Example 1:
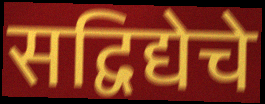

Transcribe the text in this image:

सद्विद्येचे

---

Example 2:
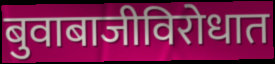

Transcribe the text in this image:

बुवाबाजीविरोधात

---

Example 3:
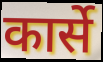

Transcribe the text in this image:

कार्से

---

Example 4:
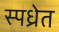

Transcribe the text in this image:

स्पध्रेत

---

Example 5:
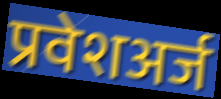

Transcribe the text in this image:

प्रवेशअर्ज